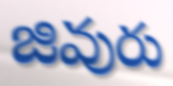
జివురు